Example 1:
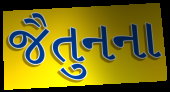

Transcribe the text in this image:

જૈતુનના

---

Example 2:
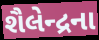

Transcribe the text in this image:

શૈલેન્દ્રના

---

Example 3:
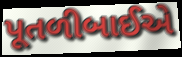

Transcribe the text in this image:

પૂતળીબાઈએ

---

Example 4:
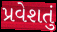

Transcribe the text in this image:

પ્રવેશતું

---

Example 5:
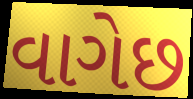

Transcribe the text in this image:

વાગેછ